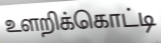
உளறிக்கொட்டி